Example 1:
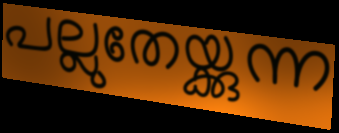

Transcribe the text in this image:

പല്ലുതേയ്ക്കുന്ന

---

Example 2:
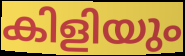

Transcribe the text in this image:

കിളിയും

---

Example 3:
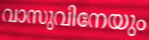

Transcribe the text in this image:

വാസുവിനേയും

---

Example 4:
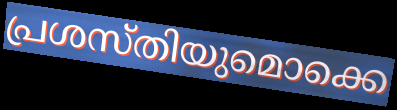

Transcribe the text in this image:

പ്രശസ്തിയുമൊക്കെ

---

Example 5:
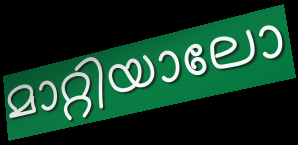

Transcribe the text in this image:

മാറ്റിയാലോ